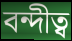
বন্দীত্ব